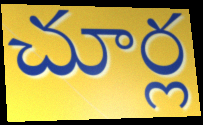
చూర్ల